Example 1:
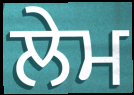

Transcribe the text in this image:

ਲੇਮ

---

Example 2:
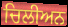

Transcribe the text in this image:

ਚਿਲੀਅਨ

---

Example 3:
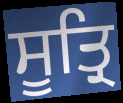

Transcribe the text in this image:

ਸੂਤ੍ਰਿ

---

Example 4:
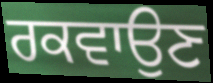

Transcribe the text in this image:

ਰਕਵਾਉਣ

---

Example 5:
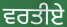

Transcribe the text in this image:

ਵਰਤੀਏ